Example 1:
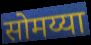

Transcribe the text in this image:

सोमय्या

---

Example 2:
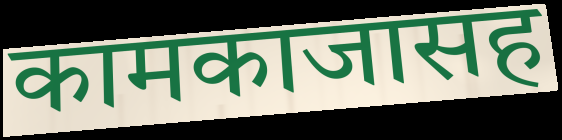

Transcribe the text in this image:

कामकाजासह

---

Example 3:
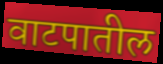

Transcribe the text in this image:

वाटपातील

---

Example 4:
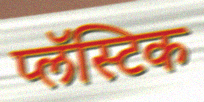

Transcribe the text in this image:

प्लॅस्टिक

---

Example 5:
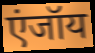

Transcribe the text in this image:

एंजॉय